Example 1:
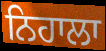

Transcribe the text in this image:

ਨਿਹਾਲਾ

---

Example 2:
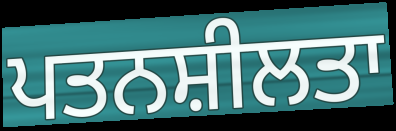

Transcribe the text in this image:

ਪਤਨਸ਼ੀਲਤਾ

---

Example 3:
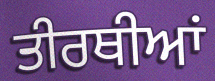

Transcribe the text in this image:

ਤੀਰਥੀਆਂ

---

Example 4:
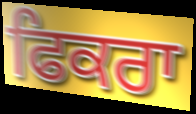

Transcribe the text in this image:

ਫਿਕਰਾ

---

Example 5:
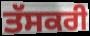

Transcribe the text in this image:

ਤੱਸਕਰੀ